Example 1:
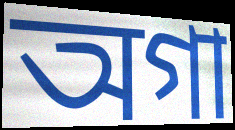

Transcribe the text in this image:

অগা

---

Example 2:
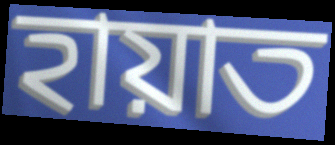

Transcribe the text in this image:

হায়াত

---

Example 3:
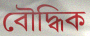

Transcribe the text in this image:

বৌদ্ধিক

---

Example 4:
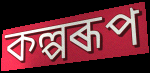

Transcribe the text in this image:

কল্পৰূপ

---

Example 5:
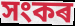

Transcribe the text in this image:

সংকৰ